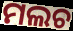
ମଲଚ